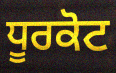
ਧੂਰਕੋਟ